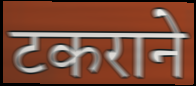
टकराने